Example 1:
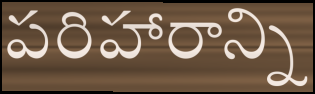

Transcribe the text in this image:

పరిహారాన్ని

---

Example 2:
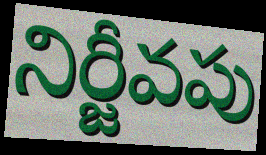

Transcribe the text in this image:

నిర్జీవపు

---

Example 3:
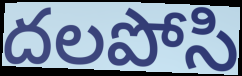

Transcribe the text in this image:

దలపోసి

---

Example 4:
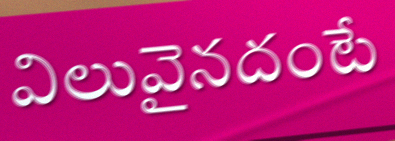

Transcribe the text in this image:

విలువైనదంటే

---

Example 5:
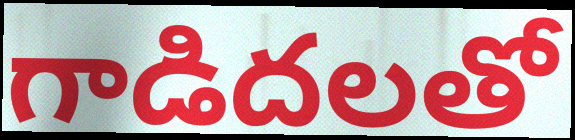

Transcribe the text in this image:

గాడిదలతో